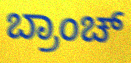
ಬ್ರಾಂಚ್